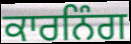
ਕਾਰਨਿੰਗ